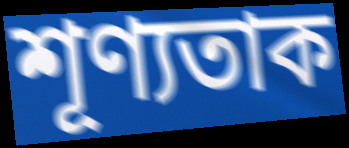
শূণ্যতাক